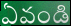
ఏవండి